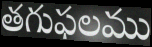
తగుఫలము